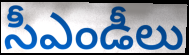
సీఎండీలు